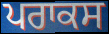
ਪਰਾਕਸ